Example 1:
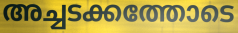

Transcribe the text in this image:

അച്ചടക്കത്തോടെ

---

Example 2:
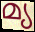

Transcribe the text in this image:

മ്യ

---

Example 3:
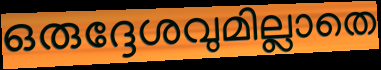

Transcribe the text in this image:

ഒരുദ്ദേശവുമില്ലാതെ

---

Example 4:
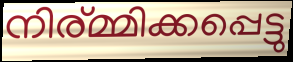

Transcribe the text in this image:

നിര്മ്മിക്കപ്പെട്ടു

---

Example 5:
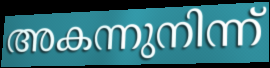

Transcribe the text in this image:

അകന്നുനിന്ന്